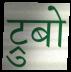
ट्रुबो